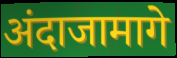
अंदाजामागे